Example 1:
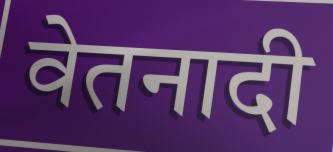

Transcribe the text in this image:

वेतनादी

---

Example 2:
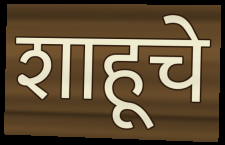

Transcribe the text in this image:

शाहूचे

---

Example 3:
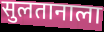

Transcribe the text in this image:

सुलतानाला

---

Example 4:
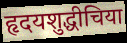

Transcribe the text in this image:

हृदयशुद्धीचिया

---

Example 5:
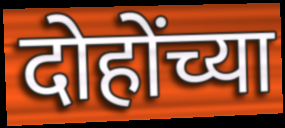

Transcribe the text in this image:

दोहोंच्या